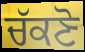
ਚੱਕਣੋ